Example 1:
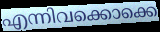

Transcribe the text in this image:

എന്നിവക്കൊക്കെ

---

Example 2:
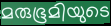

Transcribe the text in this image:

മരുഭൂമിയുടെ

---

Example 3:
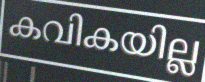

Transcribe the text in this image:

കവികയില്ല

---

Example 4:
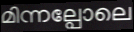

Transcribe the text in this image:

മിന്നല്പോലെ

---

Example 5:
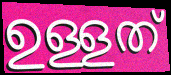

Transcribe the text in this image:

ഉള്ളത്